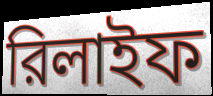
রিলাইফ